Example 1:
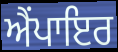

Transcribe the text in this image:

ਐੰਪਾਇਰ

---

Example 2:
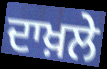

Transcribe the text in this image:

ਦਾਖ਼ਲੇ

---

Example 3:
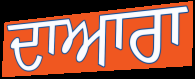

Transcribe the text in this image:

ਦਾਆਰਾ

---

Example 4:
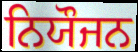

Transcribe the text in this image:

ਨਿਯੌਜਨ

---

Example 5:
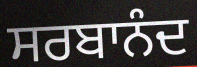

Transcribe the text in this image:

ਸਰਬਾਨੰਦ